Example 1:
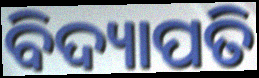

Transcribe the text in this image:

ବିଦ୍ୟାପତି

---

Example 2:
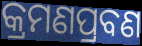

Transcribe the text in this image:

କ୍ରମଣପ୍ରବଣ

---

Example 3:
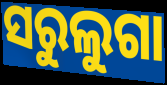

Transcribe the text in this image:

ସରୁଲୁଗା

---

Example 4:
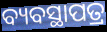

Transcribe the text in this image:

ବ୍ୟବସ୍ଥାପତ୍ର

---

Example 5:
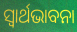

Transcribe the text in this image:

ସ୍ଵାର୍ଥଭାବନା